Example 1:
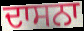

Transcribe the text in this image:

ਦਾਸਨਾ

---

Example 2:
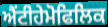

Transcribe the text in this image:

ਐਂਟੀਹੇਮੋਫਿਲਿਕ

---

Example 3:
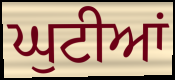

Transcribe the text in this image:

ਘੁਟੀਆਂ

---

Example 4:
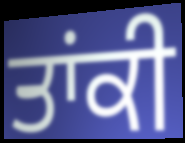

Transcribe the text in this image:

ਤਾਂਕੀ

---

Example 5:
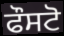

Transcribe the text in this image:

ਫੌਸਟੋ